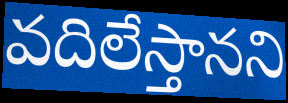
వదిలేస్తానని